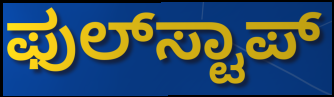
ಫುಲ್‍ಸ್ಟಾಪ್